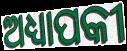
ଅଧ୍ୟାପକୀ